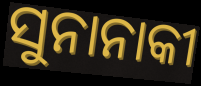
ସୁନାନାକୀ